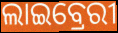
ଲାଇବ୍ରେରୀ